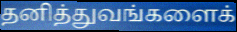
தனித்துவங்களைக்